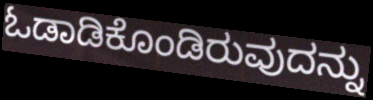
ಓಡಾಡಿಕೊಂಡಿರುವುದನ್ನು